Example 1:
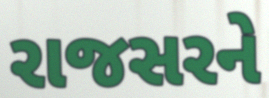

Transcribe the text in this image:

રાજસરને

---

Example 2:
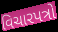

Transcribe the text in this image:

વિચારપત્રો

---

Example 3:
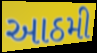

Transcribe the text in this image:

આઠમી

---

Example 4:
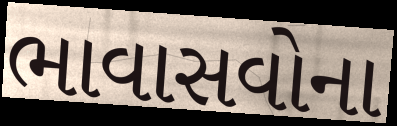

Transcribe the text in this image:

ભાવાસવોના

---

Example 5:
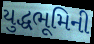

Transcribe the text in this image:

યુદ્ધભૂમિની